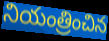
నియంత్రించిన